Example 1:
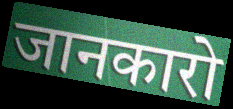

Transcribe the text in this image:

जानकारो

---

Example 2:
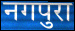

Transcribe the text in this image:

नगपुरा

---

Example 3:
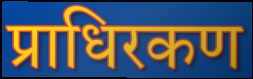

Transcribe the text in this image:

प्राधिरकण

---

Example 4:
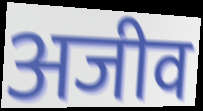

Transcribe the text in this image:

अजीव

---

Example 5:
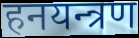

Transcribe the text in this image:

हनयन्त्रण